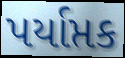
પર્યાપ્તક